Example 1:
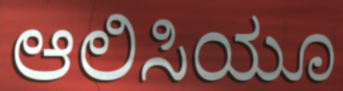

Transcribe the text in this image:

ಆಲಿಸಿಯೂ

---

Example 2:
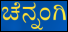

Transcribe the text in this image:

ಚೆನ್ನಂಗಿ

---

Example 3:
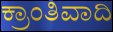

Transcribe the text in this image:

ಕ್ರಾಂತಿವಾದಿ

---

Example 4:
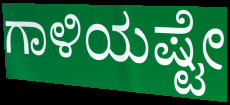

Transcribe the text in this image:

ಗಾಳಿಯಷ್ಟೇ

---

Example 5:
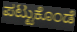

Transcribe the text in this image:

ಪಟ್ಟುಕೊಂಡೆ